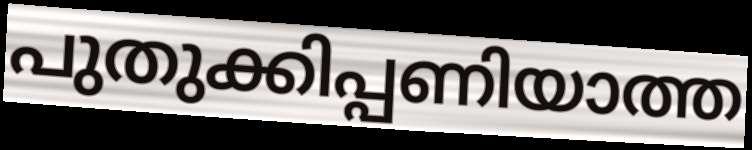
പുതുക്കിപ്പണിയാത്ത